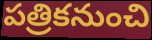
పత్రికనుంచి